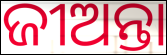
ଜୀଅନ୍ତା